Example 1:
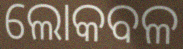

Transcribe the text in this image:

ଲୋକବଳ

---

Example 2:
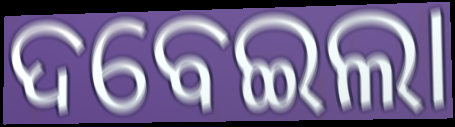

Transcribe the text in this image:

ଦବେଇଲା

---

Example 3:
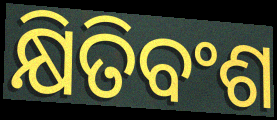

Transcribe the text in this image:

କ୍ଷିତିବଂଶ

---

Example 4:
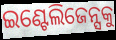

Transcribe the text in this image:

ଇଣ୍ଟେଲିଜେନ୍ସକୁ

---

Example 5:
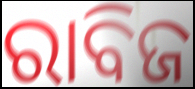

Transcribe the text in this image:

ରାବିଜ